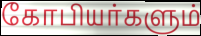
கோபியர்களும்